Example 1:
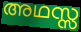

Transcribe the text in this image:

അഥസ്സ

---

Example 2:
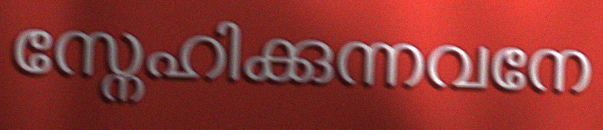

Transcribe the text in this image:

സ്നേഹിക്കുന്നവനേ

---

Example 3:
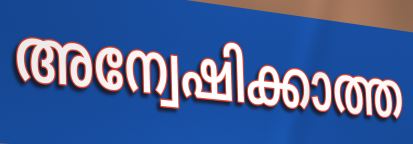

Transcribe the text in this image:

അന്വേഷിക്കാത്ത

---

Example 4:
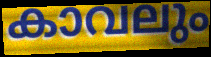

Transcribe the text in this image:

കാവലും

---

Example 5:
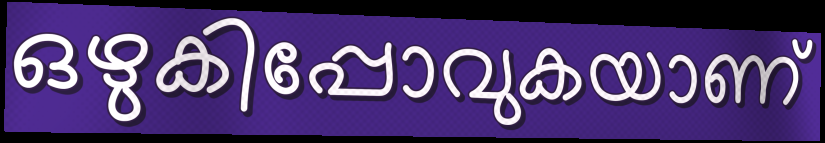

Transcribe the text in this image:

ഒഴുകിപ്പോവുകയാണ്